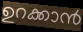
ഉറക്കാൻ